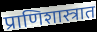
प्राणिशास्त्रात